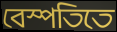
বেস্পতিতে